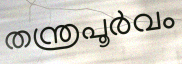
തന്ത്രപൂർവം